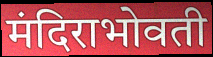
मंदिराभोवती